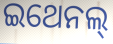
ଇଥେନଲ୍